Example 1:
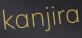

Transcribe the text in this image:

kanjira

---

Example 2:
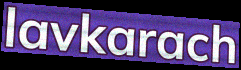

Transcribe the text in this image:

lavkarach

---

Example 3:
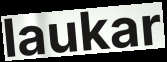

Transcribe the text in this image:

laukar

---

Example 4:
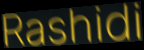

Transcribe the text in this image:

Rashidi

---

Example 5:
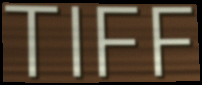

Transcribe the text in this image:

TIFF